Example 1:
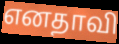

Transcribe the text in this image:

எனதாவி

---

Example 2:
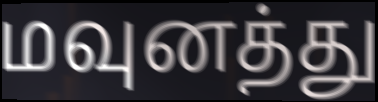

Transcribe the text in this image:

மவுனத்து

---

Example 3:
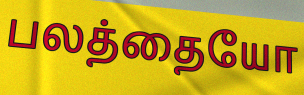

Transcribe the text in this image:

பலத்தையோ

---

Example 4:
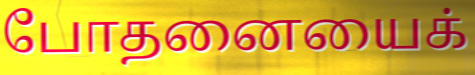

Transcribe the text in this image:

போதனையைக்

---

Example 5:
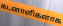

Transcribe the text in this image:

கடனாளிகளாக